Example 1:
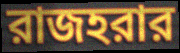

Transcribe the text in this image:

রাজহরার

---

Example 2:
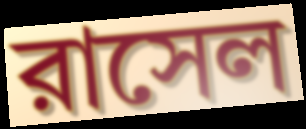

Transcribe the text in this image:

রাসেল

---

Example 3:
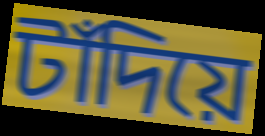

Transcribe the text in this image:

টাঁদিয়ে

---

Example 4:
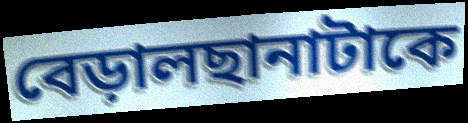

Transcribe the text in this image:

বেড়ালছানাটাকে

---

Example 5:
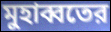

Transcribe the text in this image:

মুহাব্বতের